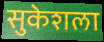
सुकेशला